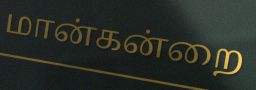
மான்கன்றை